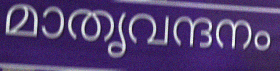
മാതൃവന്ദനം